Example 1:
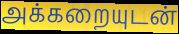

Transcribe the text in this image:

அக்கறையுடன்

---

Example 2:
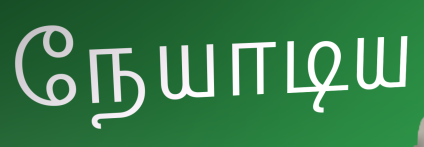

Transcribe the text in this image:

நேயாடிய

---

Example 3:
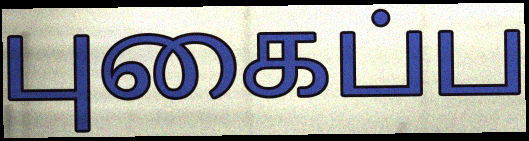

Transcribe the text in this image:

புகைப்ப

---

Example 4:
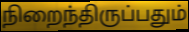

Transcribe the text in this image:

நிறைந்திருப்பதும்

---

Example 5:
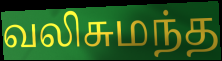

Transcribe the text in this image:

வலிசுமந்த